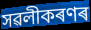
সৱলীকৰণৰ